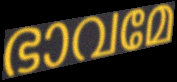
ഭാവമേ